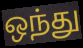
ஒந்து